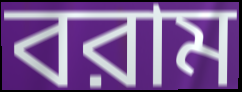
বরাম